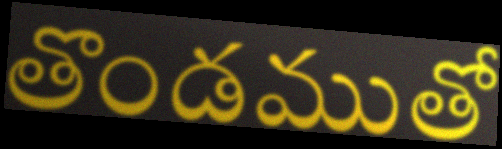
తొండముతో